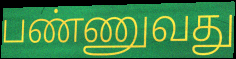
பண்ணுவது